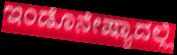
ಇಂಡೊನೇಷ್ಯಾದಲ್ಲಿ